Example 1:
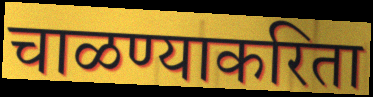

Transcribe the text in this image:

चाळण्याकरिता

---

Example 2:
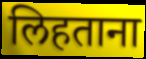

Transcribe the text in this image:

लिहताना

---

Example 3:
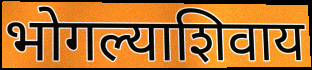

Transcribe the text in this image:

भोगल्याशिवाय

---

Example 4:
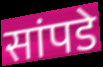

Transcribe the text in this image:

सांपडे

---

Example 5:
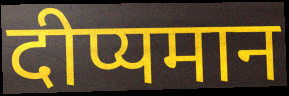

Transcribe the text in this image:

दीप्यमान